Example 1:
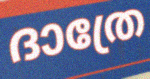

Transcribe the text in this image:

ദാത്രേ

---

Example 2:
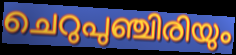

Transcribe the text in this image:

ചെറുപുഞ്ചിരിയും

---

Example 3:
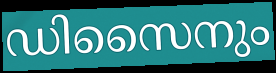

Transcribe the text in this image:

ഡിസൈനും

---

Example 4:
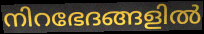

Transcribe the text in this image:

നിറഭേദങ്ങളിൽ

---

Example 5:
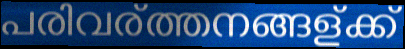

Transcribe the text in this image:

പരിവര്ത്തനങ്ങള്ക്ക്